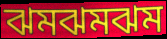
ঝমঝমঝম